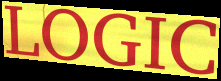
LOGIC